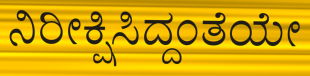
ನಿರೀಕ್ಷಿಸಿದ್ದಂತೆಯೇ